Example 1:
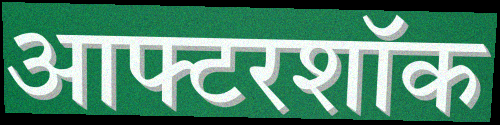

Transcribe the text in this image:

आफ्टरशॉक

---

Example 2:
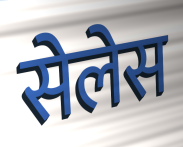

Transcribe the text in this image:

सेलेस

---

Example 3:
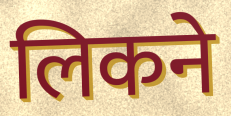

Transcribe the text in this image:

लिकने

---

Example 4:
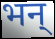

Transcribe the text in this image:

भन्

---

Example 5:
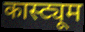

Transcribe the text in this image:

कास्ट्यूम